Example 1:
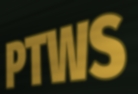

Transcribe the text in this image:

PTWS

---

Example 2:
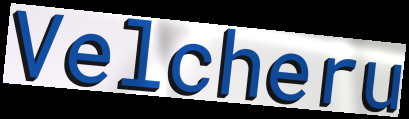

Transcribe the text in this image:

Velcheru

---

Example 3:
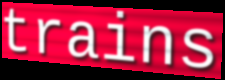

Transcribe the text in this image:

trains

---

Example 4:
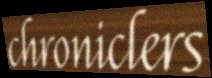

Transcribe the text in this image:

chroniclers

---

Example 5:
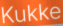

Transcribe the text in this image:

Kukke